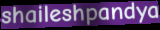
shaileshpandya